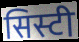
सिस्टी